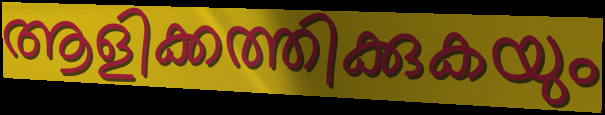
ആളിക്കത്തിക്കുകയും